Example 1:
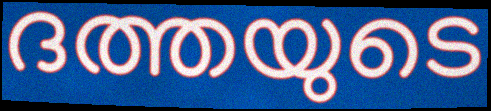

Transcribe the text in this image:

ദത്തയുടെ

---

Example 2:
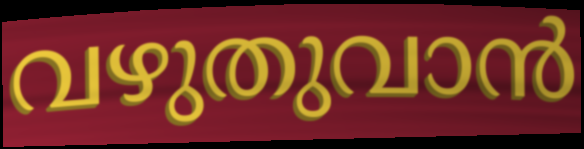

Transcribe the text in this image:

വഴുതുവാൻ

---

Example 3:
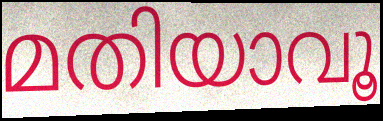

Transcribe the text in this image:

മതിയാവൂ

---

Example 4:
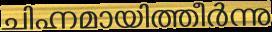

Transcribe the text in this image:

ചിഹ്നമായിത്തീർന്നു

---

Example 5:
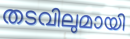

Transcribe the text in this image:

തടവിലുമായി